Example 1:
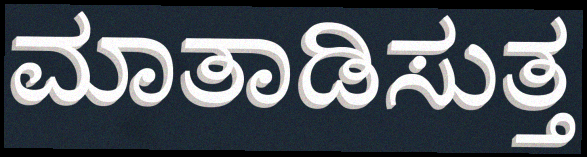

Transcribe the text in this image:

ಮಾತಾಡಿಸುತ್ತ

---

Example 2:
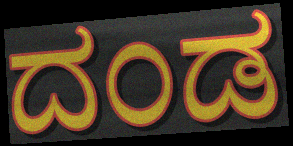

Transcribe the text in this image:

ದಂಡ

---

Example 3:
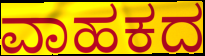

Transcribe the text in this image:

ವಾಹಕದ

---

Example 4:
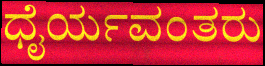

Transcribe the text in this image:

ಧೈರ್ಯವಂತರು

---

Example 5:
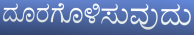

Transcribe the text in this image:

ದೂರಗೊಳಿಸುವುದು